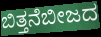
ಬಿತ್ತನೆಬೀಜದ